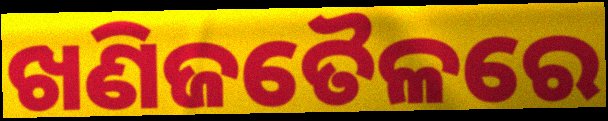
ଖଣିଜତୈଳରେ